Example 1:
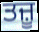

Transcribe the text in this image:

ਤਜ਼ੂ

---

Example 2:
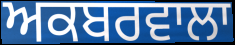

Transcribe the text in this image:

ਅਕਬਰਵਾਲਾ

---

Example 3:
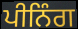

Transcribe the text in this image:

ਪੀਨਿੰਗ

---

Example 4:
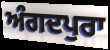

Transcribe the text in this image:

ਅੰਗਦਪੁਰਾ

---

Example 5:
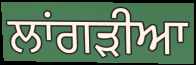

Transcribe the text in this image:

ਲਾਂਗੜੀਆ